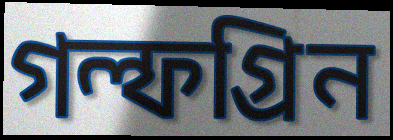
গল্ফগ্রিন